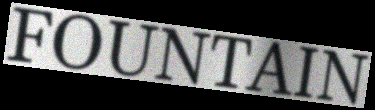
FOUNTAIN